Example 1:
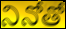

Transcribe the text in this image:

నినోతో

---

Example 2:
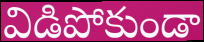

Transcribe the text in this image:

విడిపోకుండా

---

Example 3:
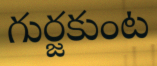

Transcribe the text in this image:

గుర్జకుంట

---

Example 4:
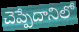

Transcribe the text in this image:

చెప్పేదానిలో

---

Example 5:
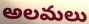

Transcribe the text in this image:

అలమలు